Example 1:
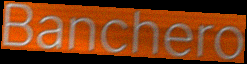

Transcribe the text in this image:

Banchero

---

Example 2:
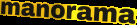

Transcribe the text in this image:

manorama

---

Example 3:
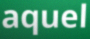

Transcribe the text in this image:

aquel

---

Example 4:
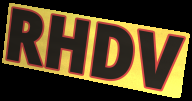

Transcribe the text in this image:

RHDV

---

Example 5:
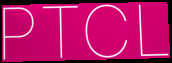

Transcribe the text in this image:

PTCL